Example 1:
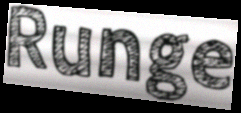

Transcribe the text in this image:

Runge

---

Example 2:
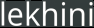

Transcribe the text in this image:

lekhini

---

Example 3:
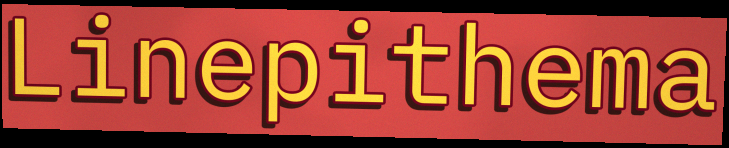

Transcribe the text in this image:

Linepithema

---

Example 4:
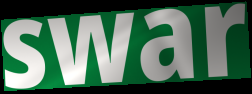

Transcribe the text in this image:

swar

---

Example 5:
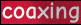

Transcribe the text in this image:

coaxing